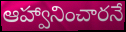
ఆహ్వానించారనే